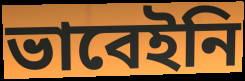
ভাবেইনি